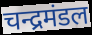
चन्द्रमंडल